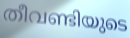
തീവണ്ടിയുടെ